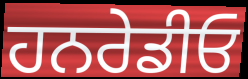
ਹਨਰੇਡੀਓ